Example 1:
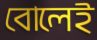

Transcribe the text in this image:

বোলেই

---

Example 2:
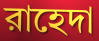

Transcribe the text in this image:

রাহেদা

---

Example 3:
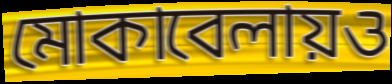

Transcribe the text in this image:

মোকাবেলায়ও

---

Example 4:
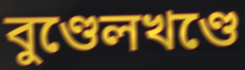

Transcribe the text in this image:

বুণ্ডেলখণ্ডে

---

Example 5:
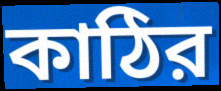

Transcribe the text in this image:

কাঠির